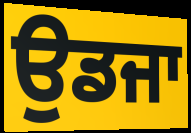
ਉਡਜਾ